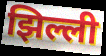
झिल्ली